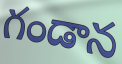
గండాన